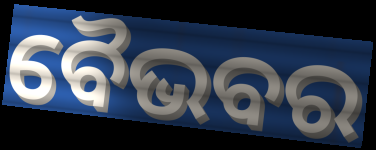
ବୈଭବର